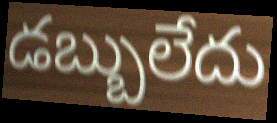
డబ్బులేదు